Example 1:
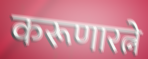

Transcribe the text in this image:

करूणारत्ने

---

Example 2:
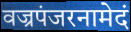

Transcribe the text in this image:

वज्रपंजरनामेदं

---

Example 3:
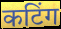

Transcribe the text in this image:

कटिंग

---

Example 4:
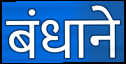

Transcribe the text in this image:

बंधाने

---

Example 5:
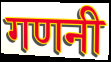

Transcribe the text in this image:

गणनी